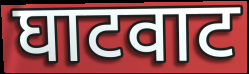
घाटवाट